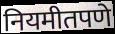
नियमीतपणे